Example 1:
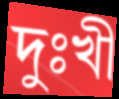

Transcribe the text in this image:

দুঃখী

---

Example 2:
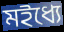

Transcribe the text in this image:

মইধ্যে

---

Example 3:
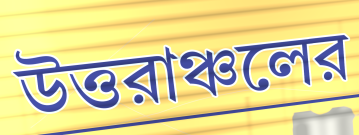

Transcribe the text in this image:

উত্তরাঞ্চলের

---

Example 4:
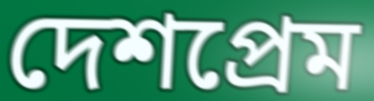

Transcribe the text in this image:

দেশপ্রেম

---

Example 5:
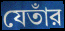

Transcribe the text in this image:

যেতাঁর